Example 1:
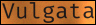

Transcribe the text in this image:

Vulgata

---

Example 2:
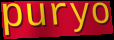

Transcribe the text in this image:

puryo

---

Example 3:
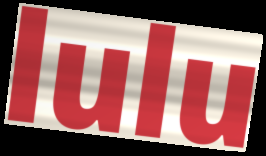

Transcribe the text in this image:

lulu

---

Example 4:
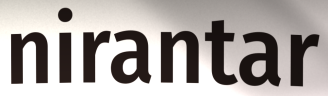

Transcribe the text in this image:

nirantar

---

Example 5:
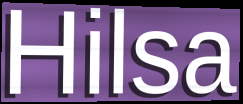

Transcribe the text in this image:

Hilsa